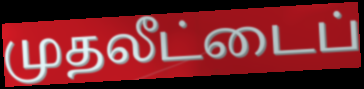
முதலீட்டைப்